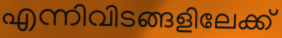
എന്നിവിടങ്ങളിലേക്ക്